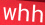
whh